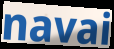
navai